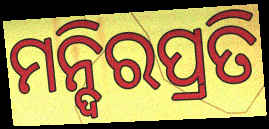
ମନ୍ଦିରପ୍ରତି